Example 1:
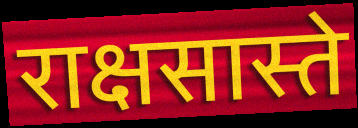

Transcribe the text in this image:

राक्षसास्ते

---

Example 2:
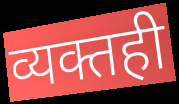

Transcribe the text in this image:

व्यक्तही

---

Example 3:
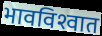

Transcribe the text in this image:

भावविश्वात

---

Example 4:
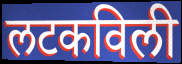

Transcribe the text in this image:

लटकविली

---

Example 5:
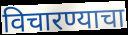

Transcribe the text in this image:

विचारण्याचा